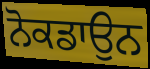
ਨੋਕਡਾਉਨ